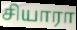
சியாரா